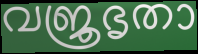
വജ്രഭൃതാ